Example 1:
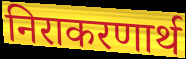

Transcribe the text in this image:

निराकरणार्थ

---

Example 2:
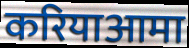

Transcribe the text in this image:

करियाआमा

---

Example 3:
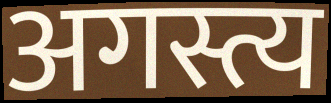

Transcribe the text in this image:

अगस्त्य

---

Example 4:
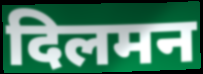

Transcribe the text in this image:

दिलमन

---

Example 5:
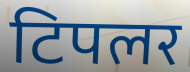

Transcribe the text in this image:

टिपलर